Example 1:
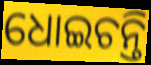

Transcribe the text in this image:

ଧୋଇଚନ୍ତି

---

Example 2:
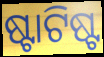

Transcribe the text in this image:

ଷ୍ଟାଟିଷ୍ଟ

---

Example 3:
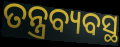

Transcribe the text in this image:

ତନ୍ତ୍ରବ୍ୟବସ୍ଥ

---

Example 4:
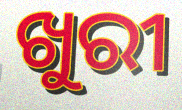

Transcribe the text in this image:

ଖୁରୀ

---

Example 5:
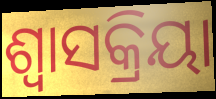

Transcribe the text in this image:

ଶ୍ବାସକ୍ରିୟା